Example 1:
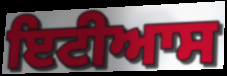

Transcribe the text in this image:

ਇਟੀਆਸ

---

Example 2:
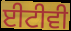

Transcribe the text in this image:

ਈਟੀਵੀ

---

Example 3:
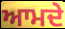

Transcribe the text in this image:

ਆਮਦੇ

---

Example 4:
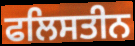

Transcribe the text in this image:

ਫਲਿਸਤੀਨ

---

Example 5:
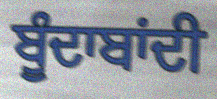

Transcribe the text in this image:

ਬੂੰਦਾਬਾਂਦੀ